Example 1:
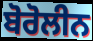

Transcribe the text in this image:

ਬੋਰੋਲੀਨ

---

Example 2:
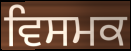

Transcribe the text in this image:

ਵਿਸਮਕ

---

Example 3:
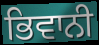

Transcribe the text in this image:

ਭਿਵਾਨੀ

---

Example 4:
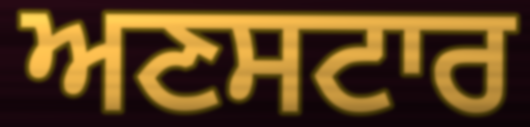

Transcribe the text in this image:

ਅਣਸਟਾਰ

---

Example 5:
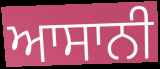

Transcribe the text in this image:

ਆਸਾਨੀ